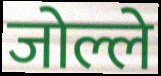
जोल्ले